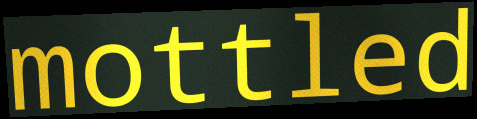
mottled